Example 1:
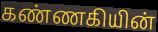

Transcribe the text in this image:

கண்ணகியின்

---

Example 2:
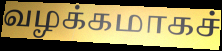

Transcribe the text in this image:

வழக்கமாகச்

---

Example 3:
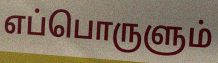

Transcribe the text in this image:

எப்பொருளும்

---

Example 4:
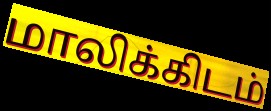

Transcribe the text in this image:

மாலிக்கிடம்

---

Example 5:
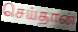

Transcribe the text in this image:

செய்தான்